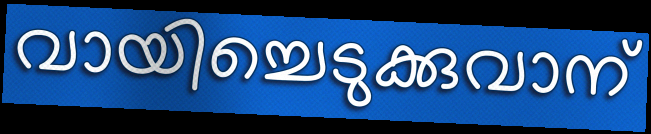
വായിച്ചെടുക്കുവാന്